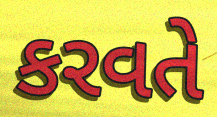
કરવતે